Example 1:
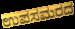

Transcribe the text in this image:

ಉಪಸಮರದ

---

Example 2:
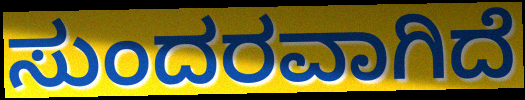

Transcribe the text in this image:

ಸುಂದರವಾಗಿದೆ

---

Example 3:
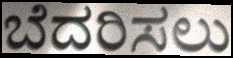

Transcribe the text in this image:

ಬೆದರಿಸಲು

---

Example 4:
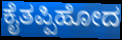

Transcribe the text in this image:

ಕೈತಪ್ಪಿಹೋದ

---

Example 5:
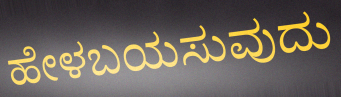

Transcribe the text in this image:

ಹೇಳಬಯಸುವುದು